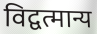
विद्वत्मान्य